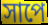
সাপে